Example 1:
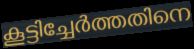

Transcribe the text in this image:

കൂട്ടിച്ചേർത്തതിനെ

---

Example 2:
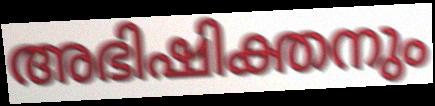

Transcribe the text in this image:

അഭിഷിക്തനും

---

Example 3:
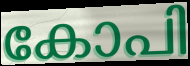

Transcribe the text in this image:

കോപി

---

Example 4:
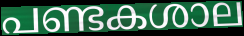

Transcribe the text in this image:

പണ്ടകശാല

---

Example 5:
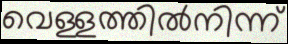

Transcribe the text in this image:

വെള്ളത്തിൽനിന്ന്